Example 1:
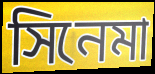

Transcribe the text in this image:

সিনেমা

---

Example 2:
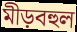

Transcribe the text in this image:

মীড়বহুল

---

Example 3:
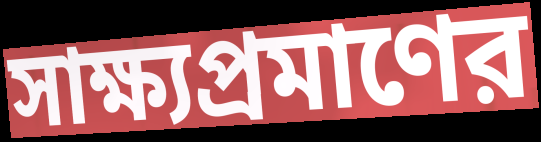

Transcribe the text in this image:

সাক্ষ্যপ্রমাণের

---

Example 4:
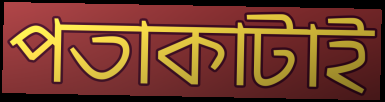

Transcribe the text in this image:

পতাকাটাই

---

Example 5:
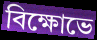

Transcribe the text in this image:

বিক্ষোভে